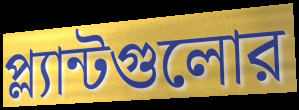
প্ল্যান্টগুলোর